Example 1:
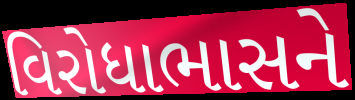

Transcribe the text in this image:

વિરોધાભાસને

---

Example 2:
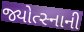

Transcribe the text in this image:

જ્યોત્સ્નાની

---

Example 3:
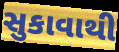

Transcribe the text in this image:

સુકાવાથી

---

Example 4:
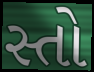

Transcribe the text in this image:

સ્તો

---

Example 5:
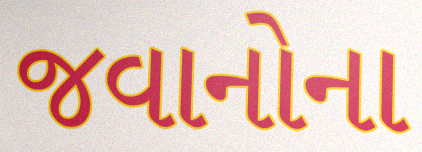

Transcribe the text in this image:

જવાનોના